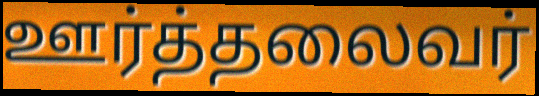
ஊர்த்தலைவர்